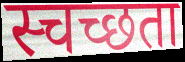
स्चच्छता